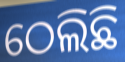
ଠେଲିଛି